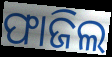
ଫାଜିଲ